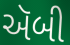
ઍબી